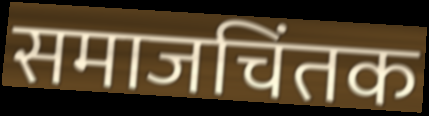
समाजचिंतक